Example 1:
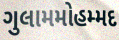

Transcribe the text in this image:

ગુલામમોહમ્મદ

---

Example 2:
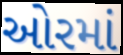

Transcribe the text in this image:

ઓરમાં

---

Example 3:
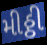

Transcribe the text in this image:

મીઠ્ઠી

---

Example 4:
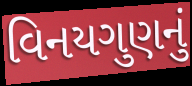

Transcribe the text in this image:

વિનયગુણનું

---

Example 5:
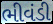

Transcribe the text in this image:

ભીવંડી